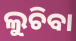
ଲୁଚିବା